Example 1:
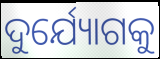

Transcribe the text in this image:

ଦୁର୍ଯ୍ୟୋଗକୁ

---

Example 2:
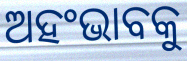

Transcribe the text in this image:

ଅହଂଭାବକୁ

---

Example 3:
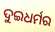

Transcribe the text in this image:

ଦୁଇଧର୍ମର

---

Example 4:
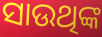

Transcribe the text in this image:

ସାଉଥିଙ୍କ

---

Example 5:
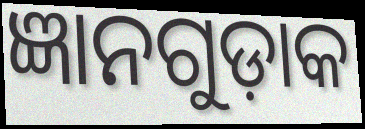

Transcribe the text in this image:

ଜ୍ଞାନଗୁଡ଼ାକ